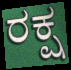
ರಕ್ಷ